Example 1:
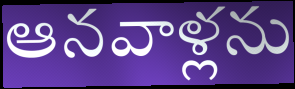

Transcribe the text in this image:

ఆనవాళ్లను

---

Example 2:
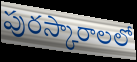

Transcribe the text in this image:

పురస్కారాలలో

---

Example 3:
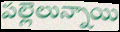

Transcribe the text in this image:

పల్లెలున్నాయి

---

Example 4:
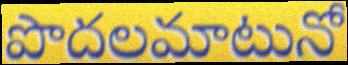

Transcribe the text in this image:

పొదలమాటునో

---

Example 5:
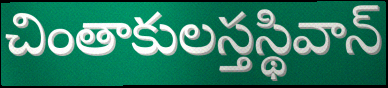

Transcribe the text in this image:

చింతాకులస్తస్థివాన్